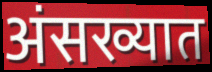
अंसख्यात